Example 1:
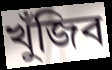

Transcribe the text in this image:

খুঁজিব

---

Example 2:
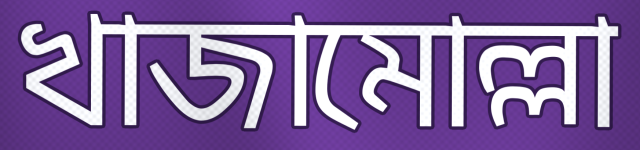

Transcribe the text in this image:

খাজামোল্লা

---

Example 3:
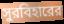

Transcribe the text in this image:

সুরবিহারের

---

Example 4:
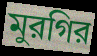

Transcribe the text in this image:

মুরগির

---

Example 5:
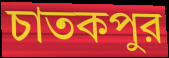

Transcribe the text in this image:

চাতকপুর